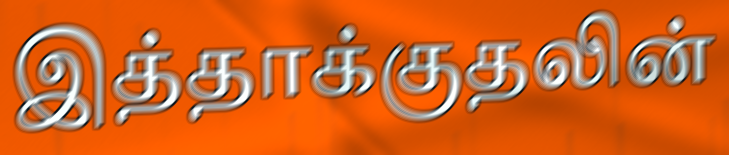
இத்தாக்குதலின்